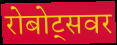
रोबोट्सवर